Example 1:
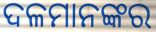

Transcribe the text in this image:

ଦଳମାନଙ୍କର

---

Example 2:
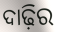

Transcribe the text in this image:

ଦାଢ଼ିର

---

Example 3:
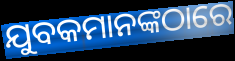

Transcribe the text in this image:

ଯୁବକମାନଙ୍କଠାରେ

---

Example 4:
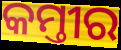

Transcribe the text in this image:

କମ୍ତୀର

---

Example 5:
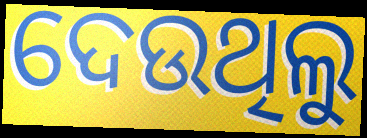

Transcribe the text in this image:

ଦେଉଥିଲୁ